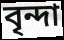
বৃন্দা